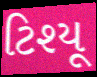
ટિશ્યૂ